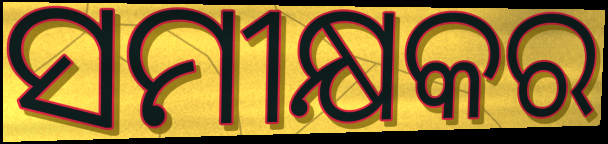
ସମୀକ୍ଷକର